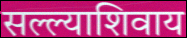
सल्ल्याशिवाय